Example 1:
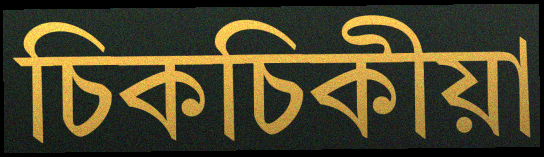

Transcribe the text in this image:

চিকচিকীয়া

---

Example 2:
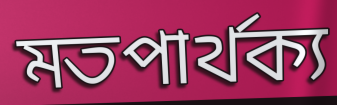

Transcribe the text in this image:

মতপাৰ্থক্য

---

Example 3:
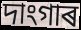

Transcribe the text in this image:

দাংগাৰ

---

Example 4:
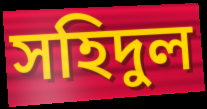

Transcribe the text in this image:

সহিদুল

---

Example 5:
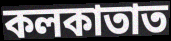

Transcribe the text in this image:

কলকাতাত